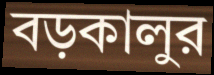
বড়কালুর